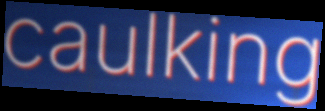
caulking